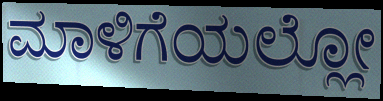
ಮಾಳಿಗೆಯಲ್ಲೋ